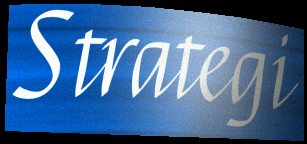
Strategi